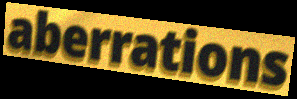
aberrations